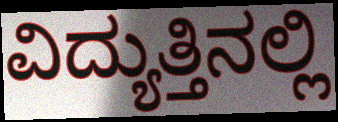
ವಿದ್ಯುತ್ತಿನಲ್ಲಿ